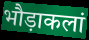
भौड़ाकलां